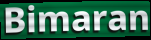
Bimaran